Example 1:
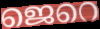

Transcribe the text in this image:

ജെറെ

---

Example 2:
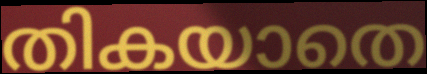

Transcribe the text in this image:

തികയാതെ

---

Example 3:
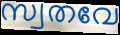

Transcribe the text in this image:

സ്വതവേ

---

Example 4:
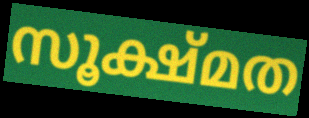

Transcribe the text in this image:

സൂക്ഷ്മത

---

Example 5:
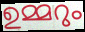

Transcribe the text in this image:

ഉമ്മറും